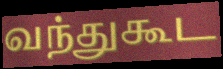
வந்துகூட